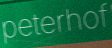
peterhof